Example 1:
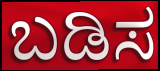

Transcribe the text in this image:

ಬಡಿಸ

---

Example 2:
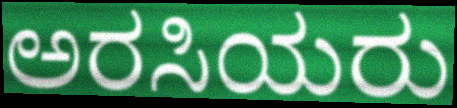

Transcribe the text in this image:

ಅರಸಿಯರು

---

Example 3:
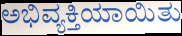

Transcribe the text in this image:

ಅಭಿವ್ಯಕ್ತಿಯಾಯಿತು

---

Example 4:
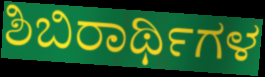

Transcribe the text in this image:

ಶಿಬಿರಾರ್ಥಿಗಳ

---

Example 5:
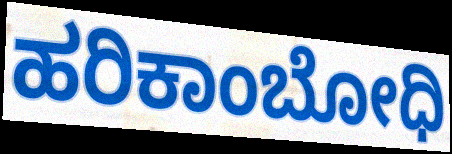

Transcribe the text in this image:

ಹರಿಕಾಂಬೋಧಿ